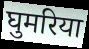
घुमरिया